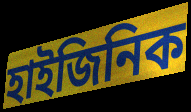
হাইজিনিক